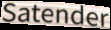
Satender